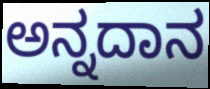
ಅನ್ನದಾನ